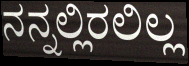
ನನ್ನಲ್ಲಿರಲಿಲ್ಲ